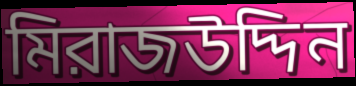
মিরাজউদ্দিন